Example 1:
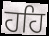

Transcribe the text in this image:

ਹਹਿ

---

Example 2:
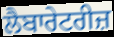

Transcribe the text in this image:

ਲੈਬਾਰੇਟਰੀਜ਼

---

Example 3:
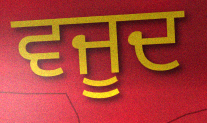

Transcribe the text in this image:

ਵਜੂਦ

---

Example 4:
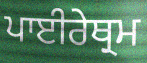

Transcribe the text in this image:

ਪਾਈਰੇਥ੍ਰਮ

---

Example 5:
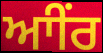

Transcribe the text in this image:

ਆੀਂਰ